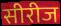
सीरीज